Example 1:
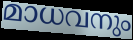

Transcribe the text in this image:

മാധവനും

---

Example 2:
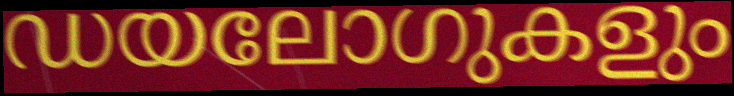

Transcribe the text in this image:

ഡയലോഗുകളും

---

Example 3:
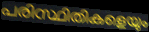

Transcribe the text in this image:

പരിസ്ഥിതികളെയും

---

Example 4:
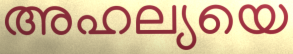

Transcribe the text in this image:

അഹല്യയെ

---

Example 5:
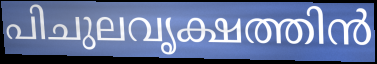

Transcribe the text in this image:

പിചുലവൃക്ഷത്തിൻ